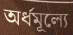
অর্ধমূল্যে